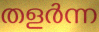
തളർന്ന